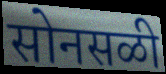
सोनसळी